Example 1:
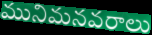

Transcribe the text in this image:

మునిమనవరాలు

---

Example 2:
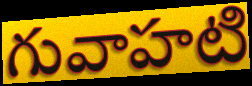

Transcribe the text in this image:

గువాహటి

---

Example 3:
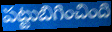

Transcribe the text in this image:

పట్టుబిగించింది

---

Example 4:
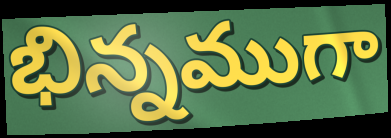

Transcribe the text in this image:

భిన్నముగా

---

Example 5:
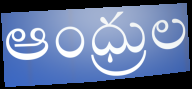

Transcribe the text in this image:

ఆంధ్రుల